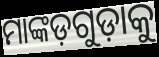
ମାଙ୍କଡ଼ଗୁଡ଼ାକୁ